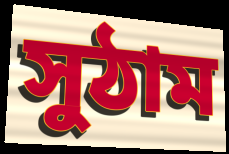
সুঠাম